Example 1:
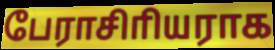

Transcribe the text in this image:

பேராசிரியராக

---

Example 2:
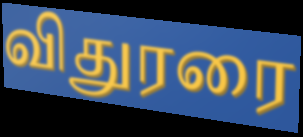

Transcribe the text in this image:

விதுரரை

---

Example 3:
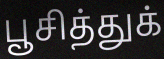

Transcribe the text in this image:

பூசித்துக்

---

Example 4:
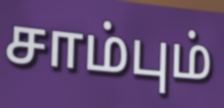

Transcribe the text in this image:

சாம்பும்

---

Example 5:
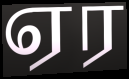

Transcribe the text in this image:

ஏர